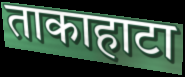
ताकाहाटा